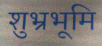
शुभ्रभूमि